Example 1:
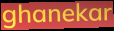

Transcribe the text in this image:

ghanekar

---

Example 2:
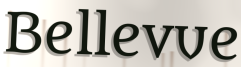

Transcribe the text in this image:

Bellevue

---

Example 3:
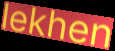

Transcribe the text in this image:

lekhen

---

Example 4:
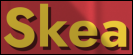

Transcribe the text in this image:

Skea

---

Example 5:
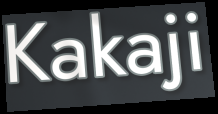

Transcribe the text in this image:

Kakaji